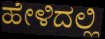
ಹೇಳಿದಲ್ಲಿ